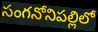
సంగనోనిపల్లిలో